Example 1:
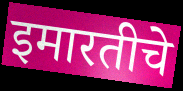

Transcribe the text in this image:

इमारतीचे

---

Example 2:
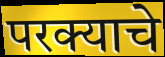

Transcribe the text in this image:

परक्याचे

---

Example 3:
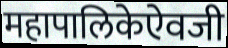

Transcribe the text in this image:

महापालिकेऐवजी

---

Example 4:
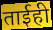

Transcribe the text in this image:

ताईही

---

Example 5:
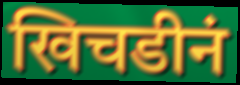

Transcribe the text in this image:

खिचडीनं